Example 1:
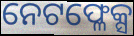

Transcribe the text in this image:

ନେଟଫ୍ଳେକ୍ସ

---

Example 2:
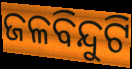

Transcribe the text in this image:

ଜଳବିନ୍ଦୁଟି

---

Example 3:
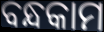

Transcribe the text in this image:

ବନ୍ଧକାମ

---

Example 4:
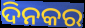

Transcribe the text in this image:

ଦିନକର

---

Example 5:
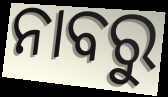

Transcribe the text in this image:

ନାବରୁ